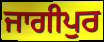
ਜਾਗੀਪੁਰ